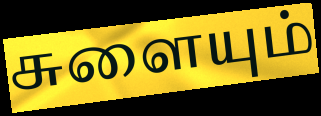
சுளையும்